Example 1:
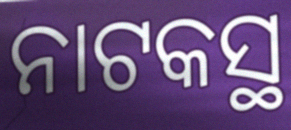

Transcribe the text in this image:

ନାଟକସ୍ଥ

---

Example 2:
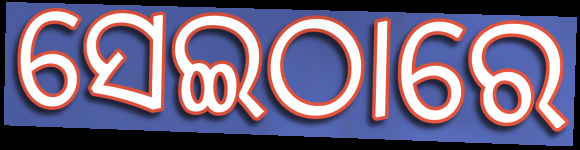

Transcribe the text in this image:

ସେଇଠାରେ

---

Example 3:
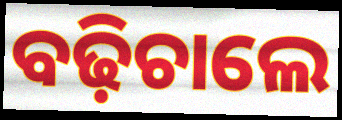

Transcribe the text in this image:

ବଢ଼ିଚାଲେ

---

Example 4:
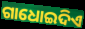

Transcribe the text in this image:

ଗାଧୋଇଦିଏ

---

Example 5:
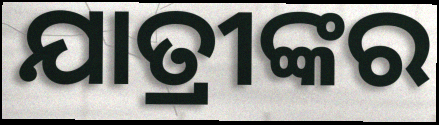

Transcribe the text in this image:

ଯାତ୍ରୀଙ୍କର